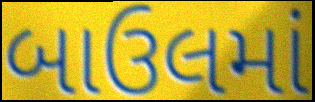
બાઉલમાં